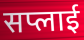
सप्लाई